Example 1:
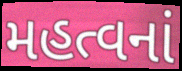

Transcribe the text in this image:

મહત્વનાં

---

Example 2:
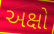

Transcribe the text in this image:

અક્ષો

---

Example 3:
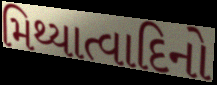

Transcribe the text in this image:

મિથ્યાત્વાદિનો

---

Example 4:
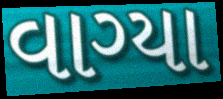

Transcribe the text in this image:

વાગ્યા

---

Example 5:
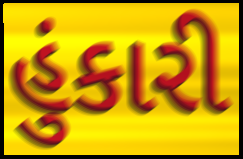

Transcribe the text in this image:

હુંકારી